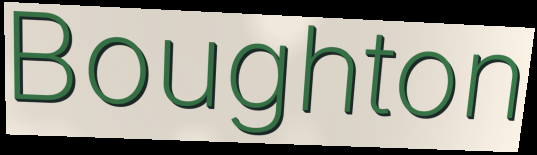
Boughton